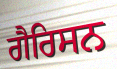
ਗੈਰਿਸਨ